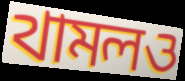
থামলও